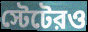
স্টেটেরও